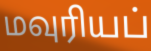
மவுரியப்